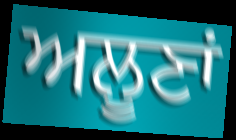
ਅਲੂਣਾਂ